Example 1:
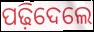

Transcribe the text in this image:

ପଢ଼ିଦେଲେ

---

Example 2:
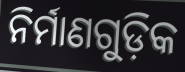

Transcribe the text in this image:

ନିର୍ମାଣଗୁଡ଼ିକ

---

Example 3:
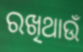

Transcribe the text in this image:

ରଖିଥାଉଁ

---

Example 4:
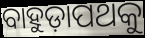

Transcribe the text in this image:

ବାହୁଡ଼ାପଥକୁ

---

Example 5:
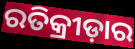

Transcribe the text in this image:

ରତିକ୍ରୀଡ଼ାର